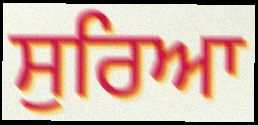
ਸੁਰਿਆ